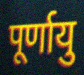
पूर्णायु